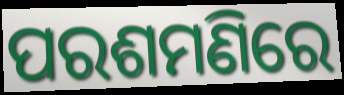
ପରଶମଣିରେ